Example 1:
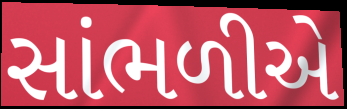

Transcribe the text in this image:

સાંભળીએ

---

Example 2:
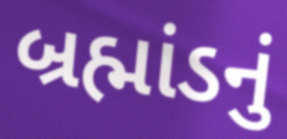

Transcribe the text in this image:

બ્રહ્માંડનું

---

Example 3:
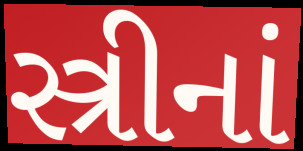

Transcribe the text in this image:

સ્ત્રીનાં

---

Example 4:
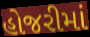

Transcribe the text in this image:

હોજરીમાં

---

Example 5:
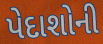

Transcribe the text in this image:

પેદાશોની